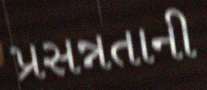
પ્રસન્નતાની